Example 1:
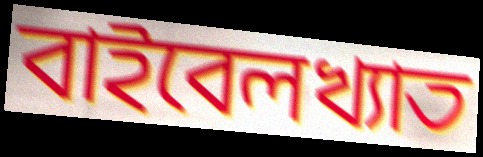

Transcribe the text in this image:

বাইবেলখ্যাত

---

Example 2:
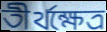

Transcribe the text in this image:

তীর্থক্ষেত্র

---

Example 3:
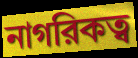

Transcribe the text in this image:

নাগরিকত্ব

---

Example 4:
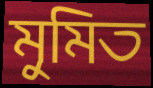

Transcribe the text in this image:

মুমিত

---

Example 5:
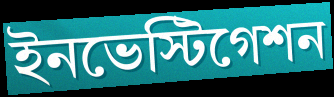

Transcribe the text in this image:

ইনভেস্টিগেশন